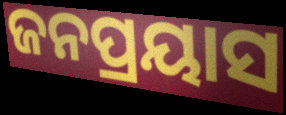
ଜନପ୍ରୟାସ